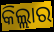
କିଲ୍ଲାର